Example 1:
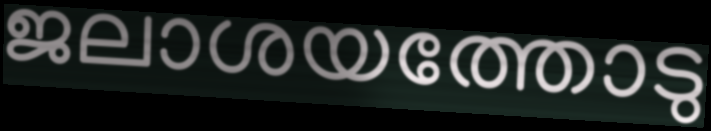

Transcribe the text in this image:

ജലാശയത്തോടു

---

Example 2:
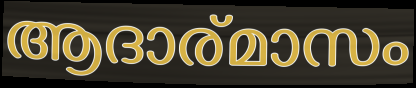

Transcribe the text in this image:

ആദാര്മാസം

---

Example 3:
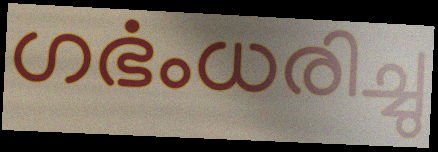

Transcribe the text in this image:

ഗൎഭംധരിച്ചു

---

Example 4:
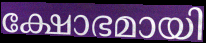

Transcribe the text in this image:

ക്ഷോഭമായി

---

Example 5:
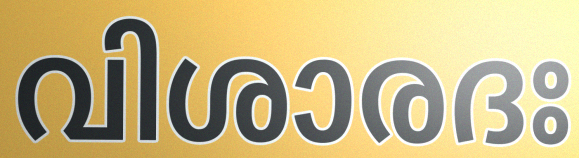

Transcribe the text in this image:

വിശാരദഃ